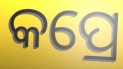
କପ୍ରେ